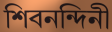
শিবনন্দিনী